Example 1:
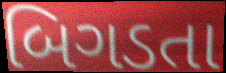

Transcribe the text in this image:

બિગડતા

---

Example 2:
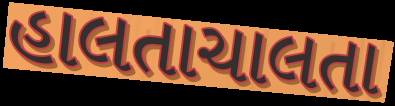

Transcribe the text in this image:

હાલતાચાલતા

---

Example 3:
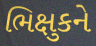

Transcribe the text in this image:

ભિક્ષુકને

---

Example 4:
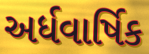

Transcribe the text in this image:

અર્ધવાર્ષિક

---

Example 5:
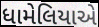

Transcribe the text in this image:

ધામેલિયાએ